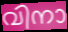
വിനാ